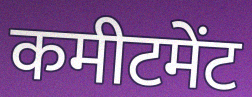
कमीटमेंट